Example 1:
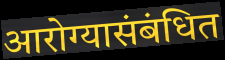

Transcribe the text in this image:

आरोग्यासंबंधित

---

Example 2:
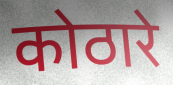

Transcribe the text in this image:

कोठारे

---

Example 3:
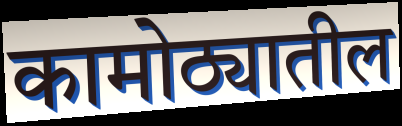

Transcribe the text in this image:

कामोठ्यातील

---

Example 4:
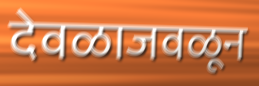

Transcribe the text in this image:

देवळाजवळून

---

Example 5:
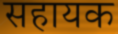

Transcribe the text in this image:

सहायक